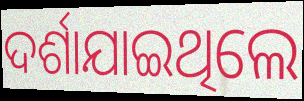
ଦର୍ଶାଯାଇଥିଲେ